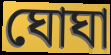
ঘোঘা